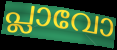
പ്ലാവോ